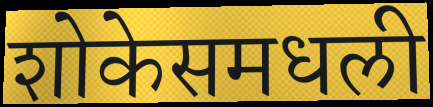
शोकेसमधली